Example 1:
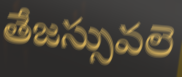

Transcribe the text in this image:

తేజస్సువలె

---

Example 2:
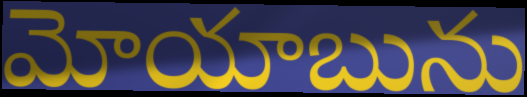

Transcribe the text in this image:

మోయాబును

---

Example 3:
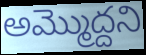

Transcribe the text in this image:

అమ్మొద్దని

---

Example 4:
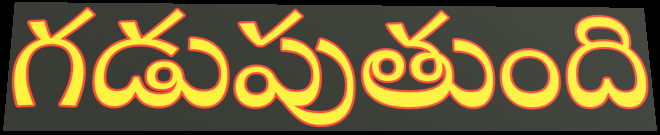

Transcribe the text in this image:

గడుపుతుంది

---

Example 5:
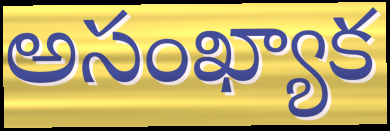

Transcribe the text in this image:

అసంఖ్యాక